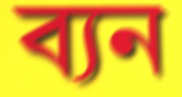
ব্যন